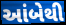
આંબેથી